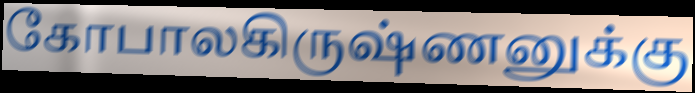
கோபாலகிருஷ்ணனுக்கு